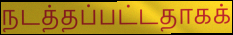
நடத்தப்பட்டதாகக்